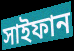
সাইফান